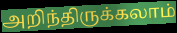
அறிந்திருக்கலாம்